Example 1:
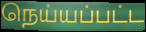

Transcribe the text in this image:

நெய்யப்பட்ட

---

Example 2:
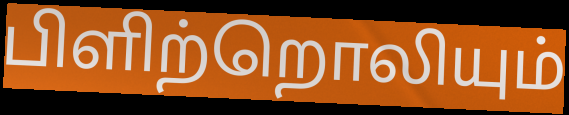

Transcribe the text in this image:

பிளிற்றொலியும்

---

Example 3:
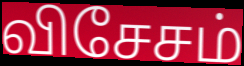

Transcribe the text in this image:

விசேசம்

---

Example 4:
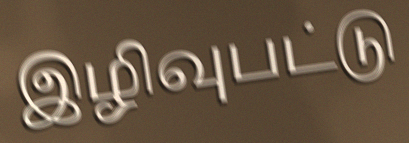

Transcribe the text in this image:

இழிவுபட்டு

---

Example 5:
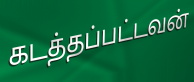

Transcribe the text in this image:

கடத்தப்பட்டவன்